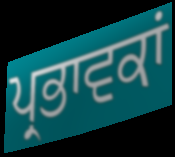
ਪ੍ਰਭਾਵਕਾਂ